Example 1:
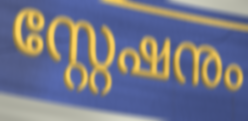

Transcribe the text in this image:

സ്റ്റേഷനും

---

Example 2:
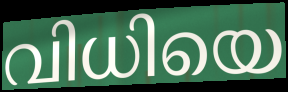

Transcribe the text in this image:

വിധിയെ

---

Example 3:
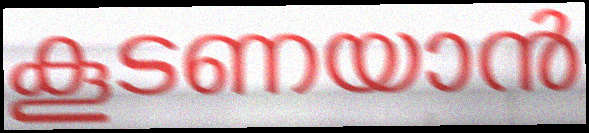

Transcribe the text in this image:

കൂടണയാൻ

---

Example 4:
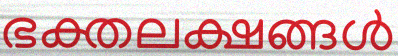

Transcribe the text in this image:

ഭക്തലക്ഷങ്ങൾ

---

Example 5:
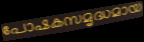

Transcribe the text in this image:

പോഷകസമൃദ്ധമായ